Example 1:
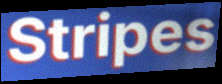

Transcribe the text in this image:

Stripes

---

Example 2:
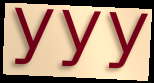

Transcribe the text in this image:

yyy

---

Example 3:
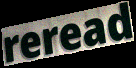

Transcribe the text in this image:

reread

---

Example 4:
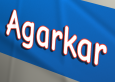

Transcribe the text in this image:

Agarkar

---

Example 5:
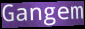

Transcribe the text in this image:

Gangem